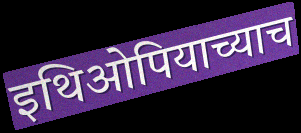
इथिओपियाच्याच